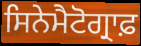
ਸਿਨੇਮੈਟੋਗ੍ਰਾਫ਼